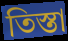
তিস্তা